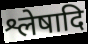
श्लेषादि